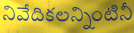
నివేదికలన్నింటినీ